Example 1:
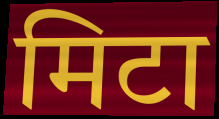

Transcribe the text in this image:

मिटा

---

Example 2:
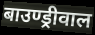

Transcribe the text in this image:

बाउण्ड्रीवाल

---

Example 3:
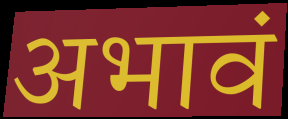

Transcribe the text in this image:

अभावं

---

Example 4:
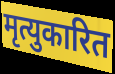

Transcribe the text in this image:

मृत्युकारित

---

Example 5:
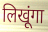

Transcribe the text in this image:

लिखूंगा